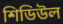
শিডিউল